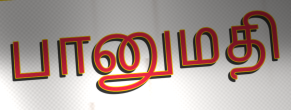
பானுமதி